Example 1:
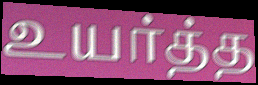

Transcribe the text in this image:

உயர்த்த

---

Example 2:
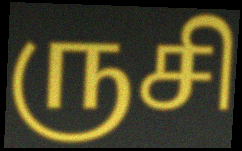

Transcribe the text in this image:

ருசி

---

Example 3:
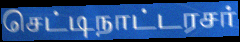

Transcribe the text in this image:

செட்டிநாட்டரசர்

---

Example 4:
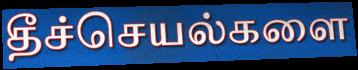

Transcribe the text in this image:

தீச்செயல்களை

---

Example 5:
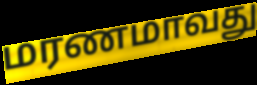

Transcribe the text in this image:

மரணமாவது